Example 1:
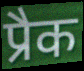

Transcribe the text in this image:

प्रैक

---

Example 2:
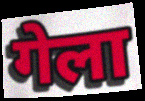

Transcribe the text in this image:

गेला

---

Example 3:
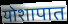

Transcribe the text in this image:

योशापात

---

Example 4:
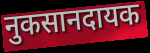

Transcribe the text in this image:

नुकसानदायक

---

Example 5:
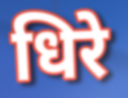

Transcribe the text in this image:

धिरे